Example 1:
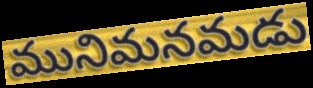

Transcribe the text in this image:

మునిమనమడు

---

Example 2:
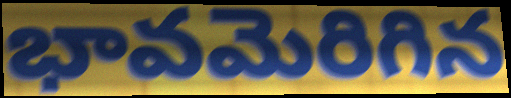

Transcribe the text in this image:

భావమెరిగిన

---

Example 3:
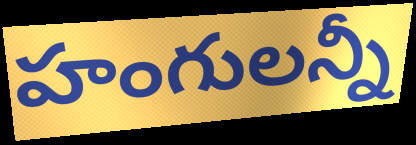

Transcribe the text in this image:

హంగులన్నీ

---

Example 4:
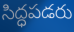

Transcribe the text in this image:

సిద్ధపడరు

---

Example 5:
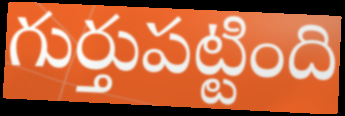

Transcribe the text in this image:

గుర్తుపట్టింది